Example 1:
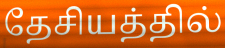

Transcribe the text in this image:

தேசியத்தில்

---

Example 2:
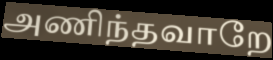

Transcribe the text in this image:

அணிந்தவாறே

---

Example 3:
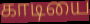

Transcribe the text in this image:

காடியை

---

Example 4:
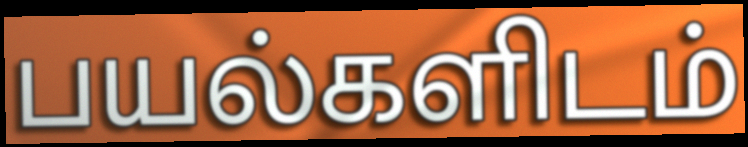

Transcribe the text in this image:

பயல்களிடம்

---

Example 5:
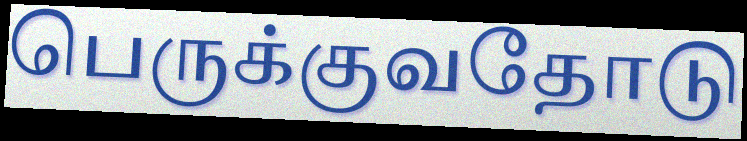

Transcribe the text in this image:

பெருக்குவதோடு